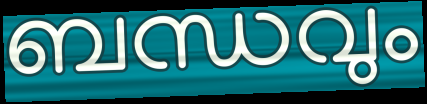
ബന്ധവും